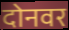
दोनवर